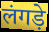
लंगड़े